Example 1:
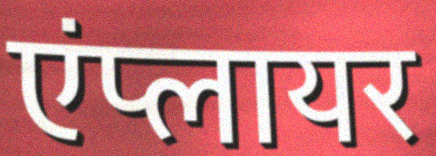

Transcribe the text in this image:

एंप्लायर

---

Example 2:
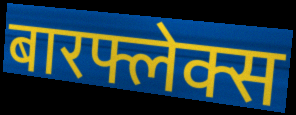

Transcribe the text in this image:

बारफ्लेक्स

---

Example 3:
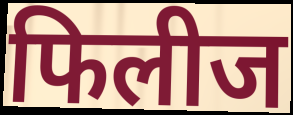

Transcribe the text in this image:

फिलीज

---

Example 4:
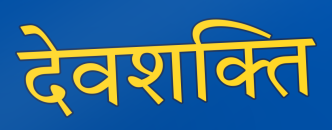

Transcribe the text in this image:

देवशक्ति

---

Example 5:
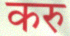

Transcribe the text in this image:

करु